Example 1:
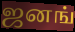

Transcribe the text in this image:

ஜனங்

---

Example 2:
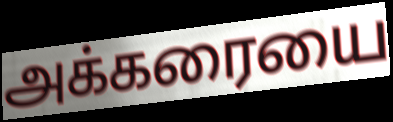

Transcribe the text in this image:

அக்கரையை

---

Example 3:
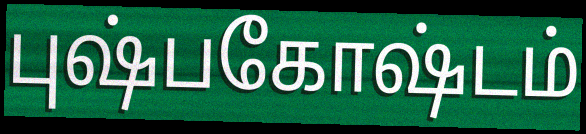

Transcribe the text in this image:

புஷ்பகோஷ்டம்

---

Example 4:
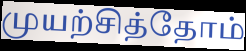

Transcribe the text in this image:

முயற்சித்தோம்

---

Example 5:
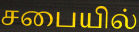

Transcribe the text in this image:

சபையில்